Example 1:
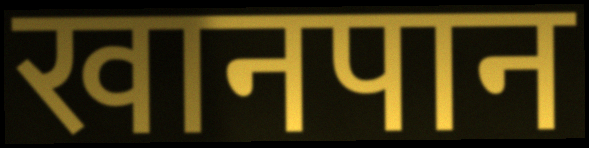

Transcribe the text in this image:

खानपान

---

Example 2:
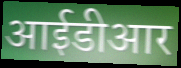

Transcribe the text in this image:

आईडीआर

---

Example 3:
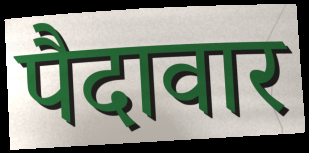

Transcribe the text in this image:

पैदावार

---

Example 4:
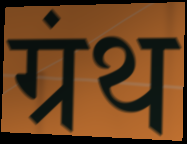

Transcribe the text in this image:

ग्रंथ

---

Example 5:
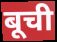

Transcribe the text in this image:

बूची